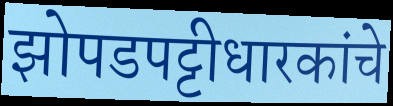
झोपडपट्टीधारकांचे